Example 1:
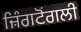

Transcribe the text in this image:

ਜ਼ਿੰਗਟੋਂਗਲੀ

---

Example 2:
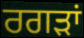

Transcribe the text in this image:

ਰਗੜਾਂ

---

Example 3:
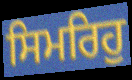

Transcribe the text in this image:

ਸਿਮਰਿਹੁ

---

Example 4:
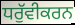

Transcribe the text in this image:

ਧਰੁੱਵੀਕਰਨ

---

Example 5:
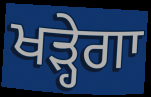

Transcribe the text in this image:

ਖੜ੍ਹੇਗਾ